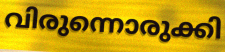
വിരുന്നൊരുക്കി